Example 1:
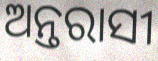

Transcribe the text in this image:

ଅନ୍ତରାସୀ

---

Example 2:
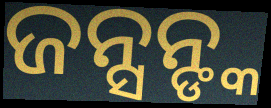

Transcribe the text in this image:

ଜନ୍ସନ୍ଙ୍କ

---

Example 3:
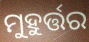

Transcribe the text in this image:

ମୁହୁର୍ତ୍ତର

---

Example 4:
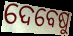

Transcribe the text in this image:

ଦେବେଷୁ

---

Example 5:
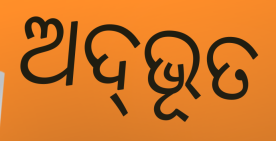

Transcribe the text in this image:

ଅଦ୍‍ଭୂତ